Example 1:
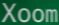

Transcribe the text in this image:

Xoom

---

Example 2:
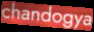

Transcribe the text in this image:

chandogya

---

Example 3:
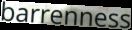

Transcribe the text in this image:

barrenness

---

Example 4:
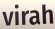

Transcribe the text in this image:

virah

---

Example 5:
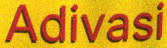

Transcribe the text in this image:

Adivasi